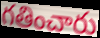
గతించారు